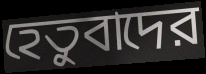
হেতুবাদের